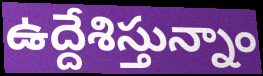
ఉద్దేశిస్తున్నాం